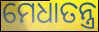
ମେଧାତନ୍ତ୍ର